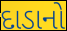
દાડાનો